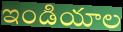
ఇండియాల